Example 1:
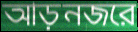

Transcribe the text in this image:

আড়নজরে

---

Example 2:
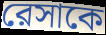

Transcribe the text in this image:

রেসাকে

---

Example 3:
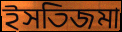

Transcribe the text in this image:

ইসতিজমা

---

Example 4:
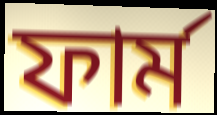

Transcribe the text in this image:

ফার্ম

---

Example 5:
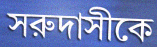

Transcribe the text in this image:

সরুদাসীকে